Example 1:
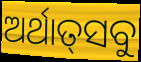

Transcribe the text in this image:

ଅର୍ଥାତ୍‌ସବୁ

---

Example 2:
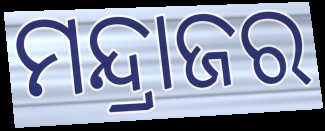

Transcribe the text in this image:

ମନ୍ଦ୍ରାଜର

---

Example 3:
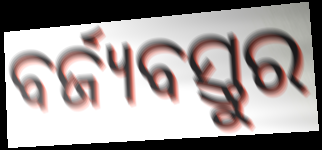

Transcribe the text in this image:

ବର୍ଜ୍ୟବସ୍ତୁର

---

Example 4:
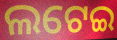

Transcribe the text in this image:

ଲଟେଇ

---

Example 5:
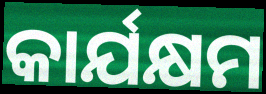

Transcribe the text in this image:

କାର୍ଯକ୍ଷମ